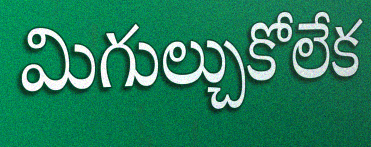
మిగుల్చుకోలేక